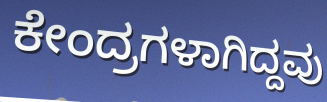
ಕೇಂದ್ರಗಳಾಗಿದ್ದವು